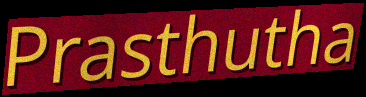
Prasthutha